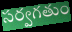
సర్వగతుం